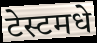
टेस्टमधे